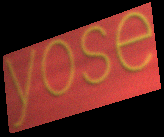
yose